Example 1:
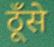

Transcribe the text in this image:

ठूँसे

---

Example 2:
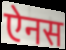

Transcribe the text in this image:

ऐनस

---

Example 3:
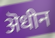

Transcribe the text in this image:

ऄधीन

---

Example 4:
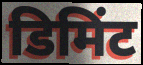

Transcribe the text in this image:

डिमिंट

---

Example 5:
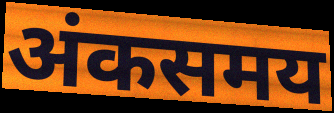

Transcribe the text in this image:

अंकसमय